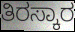
ತಿರಸ್ಕಾರ